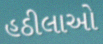
હઠીલાઓ